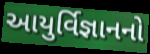
આયુર્વિજ્ઞાનનો